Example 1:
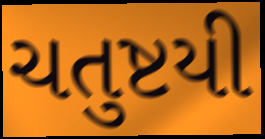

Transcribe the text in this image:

ચતુષ્ટયી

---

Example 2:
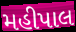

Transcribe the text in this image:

મહીપાલ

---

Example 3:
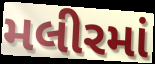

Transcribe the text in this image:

મલીરમાં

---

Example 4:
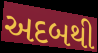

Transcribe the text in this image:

અદબથી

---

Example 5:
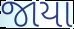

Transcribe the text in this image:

જાયા